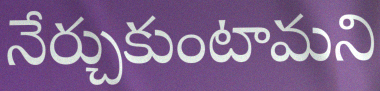
నేర్చుకుంటామని